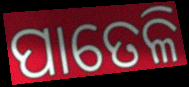
ପାତେଳି